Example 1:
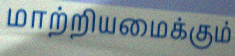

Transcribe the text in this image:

மாற்றியமைக்கும்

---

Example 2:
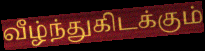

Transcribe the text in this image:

வீழ்ந்துகிடக்கும்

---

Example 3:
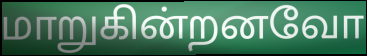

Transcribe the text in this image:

மாறுகின்றனவோ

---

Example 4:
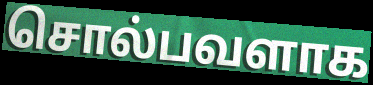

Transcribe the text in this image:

சொல்பவளாக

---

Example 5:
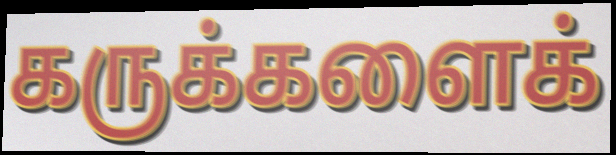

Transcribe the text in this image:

கருக்களைக்